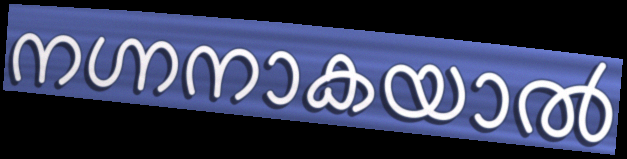
നഗ്നനാകയാൽ